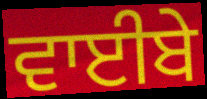
ਵਾਈਬੇ